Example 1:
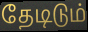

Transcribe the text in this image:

தேடிடும்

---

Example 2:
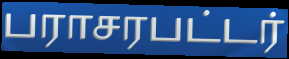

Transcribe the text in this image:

பராசரபட்டர்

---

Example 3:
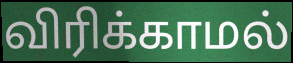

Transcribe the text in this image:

விரிக்காமல்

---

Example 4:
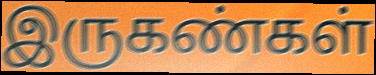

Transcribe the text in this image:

இருகண்கள்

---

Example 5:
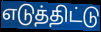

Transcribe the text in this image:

எடுத்திட்டு